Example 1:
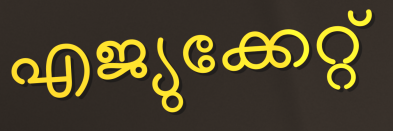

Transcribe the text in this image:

എജ്യുക്കേറ്റ്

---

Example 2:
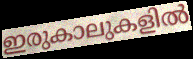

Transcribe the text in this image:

ഇരുകാലുകളിൽ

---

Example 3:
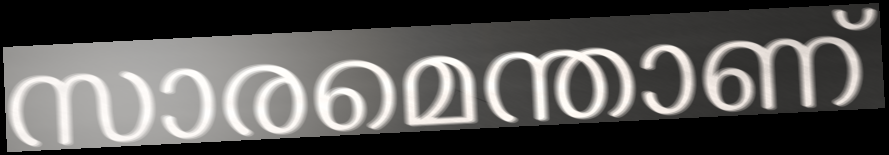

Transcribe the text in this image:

സാരമെന്താണ്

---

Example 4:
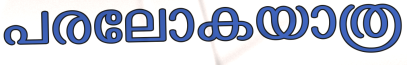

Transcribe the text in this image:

പരലോകയാത്ര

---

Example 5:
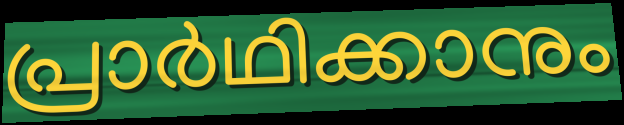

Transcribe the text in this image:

പ്രാർഥിക്കാനും